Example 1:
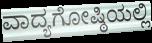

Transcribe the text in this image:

ವಾದ್ಯಗೋಷ್ಠಿಯಲ್ಲಿ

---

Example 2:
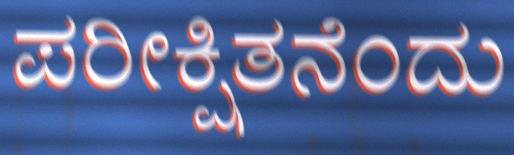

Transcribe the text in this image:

ಪರೀಕ್ಷಿತನೆಂದು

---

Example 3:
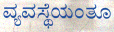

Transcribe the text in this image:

ವ್ಯವಸ್ಥೆಯಂತೂ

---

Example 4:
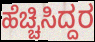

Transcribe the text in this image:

ಹೆಚ್ಚಿಸಿದ್ದರ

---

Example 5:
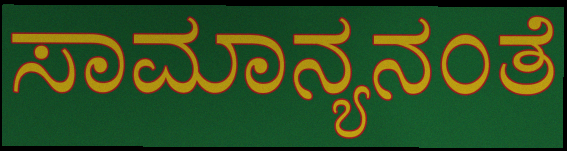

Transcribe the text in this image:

ಸಾಮಾನ್ಯನಂತೆ